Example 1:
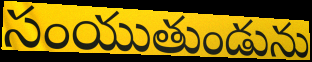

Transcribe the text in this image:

సంయుతుండును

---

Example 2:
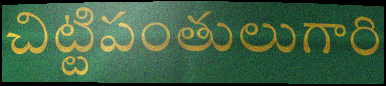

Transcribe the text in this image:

చిట్టిపంతులుగారి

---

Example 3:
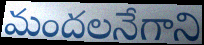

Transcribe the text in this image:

మందలనేగాని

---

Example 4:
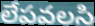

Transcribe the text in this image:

లేపవలసి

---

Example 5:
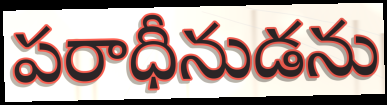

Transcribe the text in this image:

పరాధీనుడను